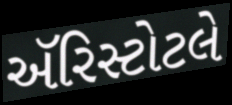
ઍરિસ્ટોટલે